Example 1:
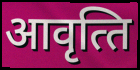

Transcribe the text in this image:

आवृत्‍ति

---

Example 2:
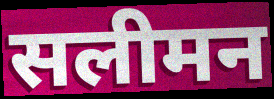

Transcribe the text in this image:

सलीमन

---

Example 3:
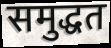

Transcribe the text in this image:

समुद्धत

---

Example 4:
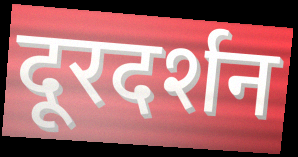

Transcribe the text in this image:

दूरदर्शन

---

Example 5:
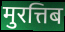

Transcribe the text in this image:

मुरत्तिब